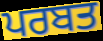
ਪਰਬਤ